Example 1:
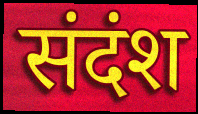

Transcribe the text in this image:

संदंश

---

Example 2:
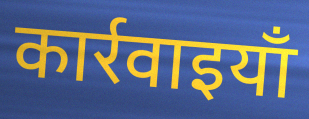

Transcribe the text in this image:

कार्रवाइयाँ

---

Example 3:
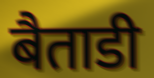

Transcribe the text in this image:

बैताडी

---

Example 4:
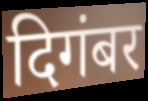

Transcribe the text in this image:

दिगंबर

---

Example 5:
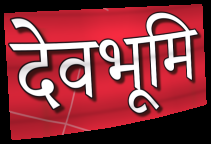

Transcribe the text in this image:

देवभूमि